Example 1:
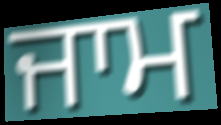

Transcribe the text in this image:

ਜਾਮ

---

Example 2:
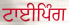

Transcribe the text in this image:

ਟਾਈਪਿੰਗ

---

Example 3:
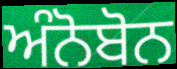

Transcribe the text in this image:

ਅੰਨੋਬੋਨ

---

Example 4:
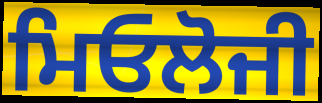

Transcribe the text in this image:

ਮਿਓਲੋਜੀ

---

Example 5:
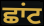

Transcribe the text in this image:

ਛਾਂਟ